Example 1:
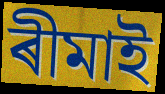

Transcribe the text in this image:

ৰীমাই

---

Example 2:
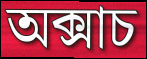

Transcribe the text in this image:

অক্সাচ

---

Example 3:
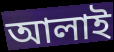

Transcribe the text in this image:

আলাই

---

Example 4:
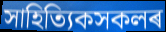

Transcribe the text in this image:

সাহিত্যিকসকলৰ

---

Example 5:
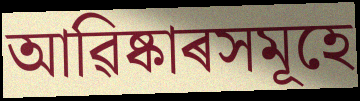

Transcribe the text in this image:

আৱিষ্কাৰসমূহে